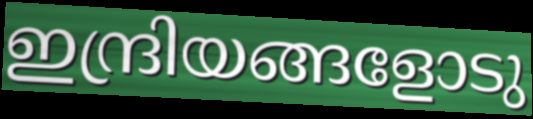
ഇന്ദ്രിയങ്ങളോടു